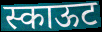
स्काऊट